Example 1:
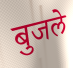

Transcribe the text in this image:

बुजले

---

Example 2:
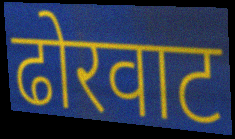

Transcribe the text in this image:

ढोरवाट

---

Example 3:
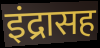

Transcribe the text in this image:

इंद्रासह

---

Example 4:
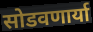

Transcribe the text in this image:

सोडवणार्या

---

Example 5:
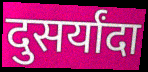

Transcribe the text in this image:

दुसर्यांदा